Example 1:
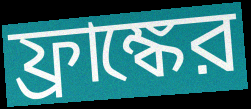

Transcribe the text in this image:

ফ্রাঙ্কের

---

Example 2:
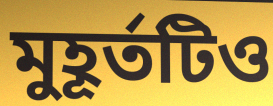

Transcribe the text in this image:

মুহূর্তটিও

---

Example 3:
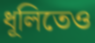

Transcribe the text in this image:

ধূলিতেও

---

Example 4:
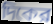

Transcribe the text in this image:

দিকের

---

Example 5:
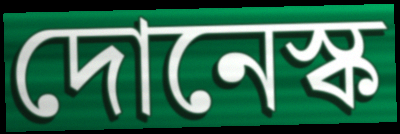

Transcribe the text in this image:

দোনেস্ক